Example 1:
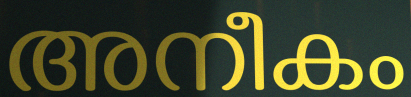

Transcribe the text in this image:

അനീകം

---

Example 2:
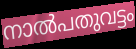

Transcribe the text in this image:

നാൽപതുവട്ടം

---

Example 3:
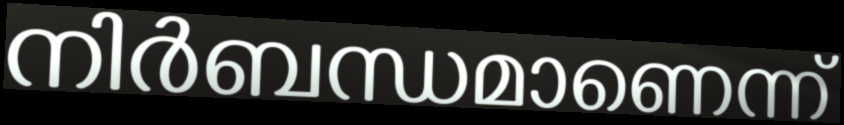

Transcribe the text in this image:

നിർബന്ധമാണെന്ന്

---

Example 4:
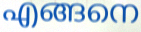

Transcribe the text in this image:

എങ്ങനെ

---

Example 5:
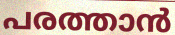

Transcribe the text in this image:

പരത്താൻ